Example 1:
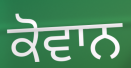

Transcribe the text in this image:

ਕੋਵਾਨ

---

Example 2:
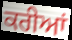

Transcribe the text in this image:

ਕਰੀਆਂ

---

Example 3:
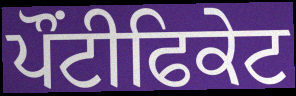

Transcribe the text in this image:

ਪੌਂਟੀਫਿਕੇਟ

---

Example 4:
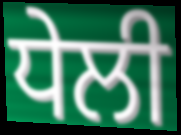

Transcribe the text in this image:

ਧੇਲੀ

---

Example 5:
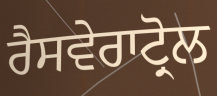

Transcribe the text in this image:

ਰੈਸਵੇਰਾਟ੍ਰੋਲ